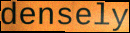
densely